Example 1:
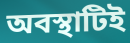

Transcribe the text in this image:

অবস্থাটিই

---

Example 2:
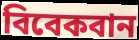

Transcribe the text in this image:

বিবেকবান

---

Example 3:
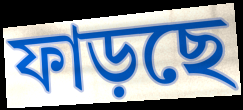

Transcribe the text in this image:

ফাড়ছে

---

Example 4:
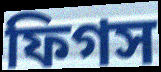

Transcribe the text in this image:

ফিগস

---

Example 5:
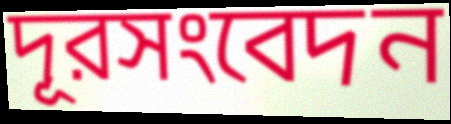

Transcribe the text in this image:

দূরসংবেদন